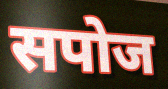
सपोज